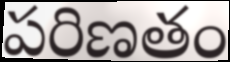
పరిణతం